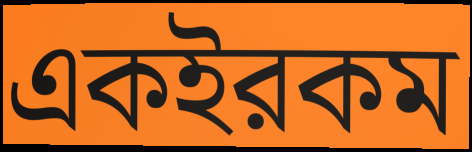
একইরকম